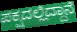
ಪಕ್ಷದಲ್ಲಿದ್ದಾನೆ